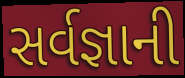
સર્વજ્ઞાની